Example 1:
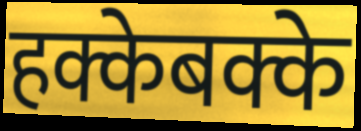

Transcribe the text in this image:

हक्केबक्के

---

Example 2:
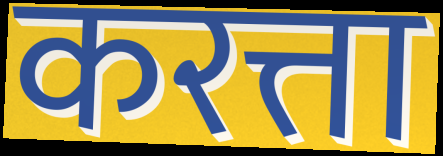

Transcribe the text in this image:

करत्ता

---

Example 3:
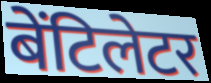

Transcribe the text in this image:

बेंटिलेटर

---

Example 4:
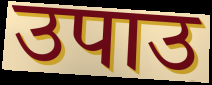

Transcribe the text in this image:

उपाउ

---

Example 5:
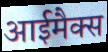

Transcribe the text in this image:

आईमैक्स